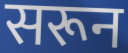
सरून